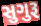
સુગુરૂ